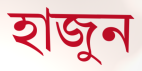
হাজুন